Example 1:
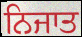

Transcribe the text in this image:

ਨਿਜਾਤ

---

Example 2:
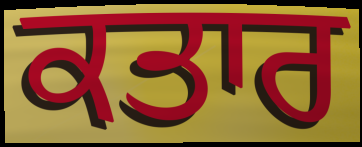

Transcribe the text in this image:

ਕਤਾਰ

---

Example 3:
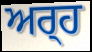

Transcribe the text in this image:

ਅਰ੍‍ਹ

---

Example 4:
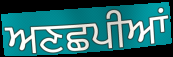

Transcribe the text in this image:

ਅਣਛਪੀਆਂ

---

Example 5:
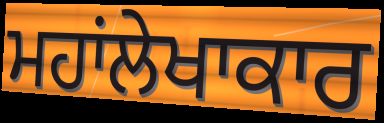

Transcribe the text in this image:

ਮਹਾਂਲੇਖਾਕਾਰ